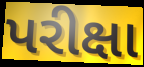
પરીક્ષા